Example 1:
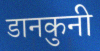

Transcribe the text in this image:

डानकुनी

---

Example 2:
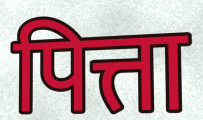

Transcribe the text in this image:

पित्ता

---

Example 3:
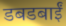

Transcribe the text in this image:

डबडबाईं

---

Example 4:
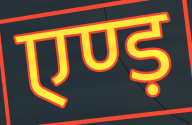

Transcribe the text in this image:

एण्ड़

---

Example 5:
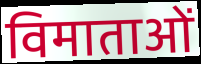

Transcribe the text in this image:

विमाताओं